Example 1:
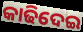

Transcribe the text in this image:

କାଢିଦେଇ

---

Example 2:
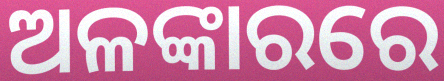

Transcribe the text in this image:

ଅଳଙ୍କାରରେ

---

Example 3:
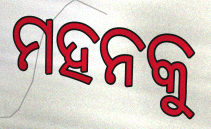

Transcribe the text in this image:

ମହନକୁ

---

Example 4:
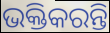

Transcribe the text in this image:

ଭକ୍ତିକରନ୍ତି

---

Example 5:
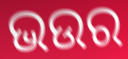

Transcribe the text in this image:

ଭଉର